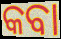
କବା